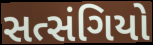
સત્સંગિયો